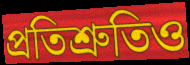
প্রতিশ্রুতিও